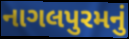
નાગલપુરમનું